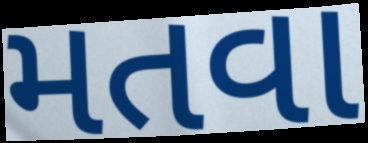
મતવા